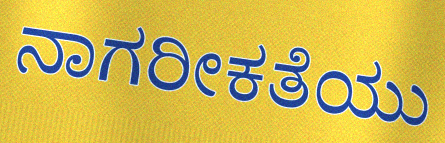
ನಾಗರೀಕತೆಯು